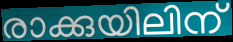
രാക്കുയിലിന്